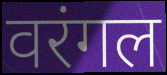
वरंगल